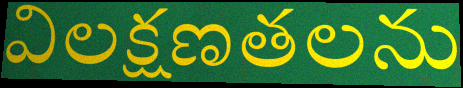
విలక్షణతలను